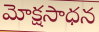
మోక్షసాధన